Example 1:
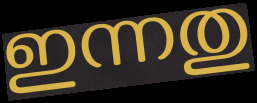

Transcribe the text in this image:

ഇന്നതു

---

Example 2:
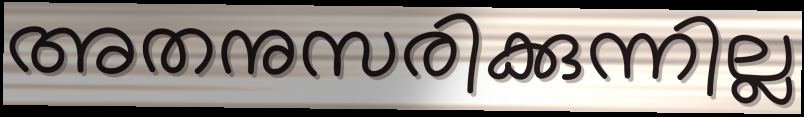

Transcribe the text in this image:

അതനുസരിക്കുന്നില്ല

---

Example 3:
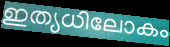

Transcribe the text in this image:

ഇത്യധിലോകം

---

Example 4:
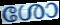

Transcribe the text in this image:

ശോ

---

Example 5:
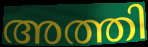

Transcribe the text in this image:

അത്തി